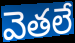
వెతలే